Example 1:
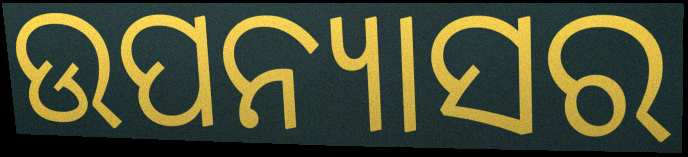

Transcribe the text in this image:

ଉପନ୍ୟାସର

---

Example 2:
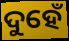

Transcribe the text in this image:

ଦୁହେଁ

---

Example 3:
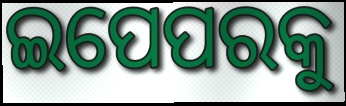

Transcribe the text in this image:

ଇପେପରକୁ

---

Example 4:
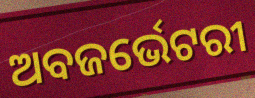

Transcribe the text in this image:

ଅବଜର୍ଭେଟରୀ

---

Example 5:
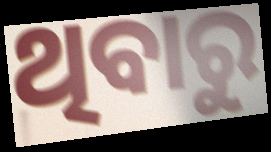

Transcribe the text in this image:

ଥିବାରୁ